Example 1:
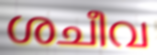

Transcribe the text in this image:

ശചീവ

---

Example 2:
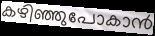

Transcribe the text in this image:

കഴിഞ്ഞുപോകാൻ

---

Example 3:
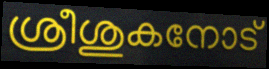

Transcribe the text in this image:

ശ്രീശുകനോട്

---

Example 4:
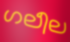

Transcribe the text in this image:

ഗലീല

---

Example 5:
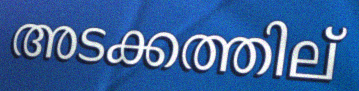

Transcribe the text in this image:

അടക്കത്തില്